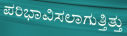
ಪರಿಭಾವಿಸಲಾಗುತ್ತಿತ್ತು